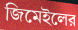
জিমেইলের